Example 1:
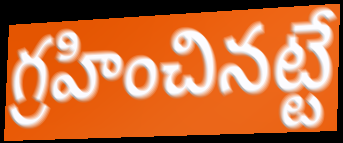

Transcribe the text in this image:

గ్రహించినట్టే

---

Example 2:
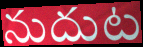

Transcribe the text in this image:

నుదుట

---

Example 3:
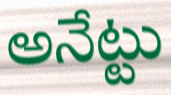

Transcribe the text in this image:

అనేట్టు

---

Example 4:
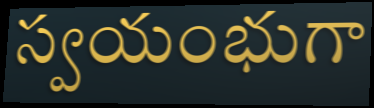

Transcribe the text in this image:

స్వయంభుగా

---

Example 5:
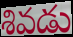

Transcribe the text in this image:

శివడు